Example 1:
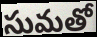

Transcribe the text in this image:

సుమతో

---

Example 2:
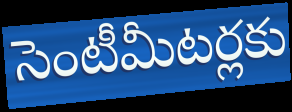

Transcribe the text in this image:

సెంటీమీటర్లకు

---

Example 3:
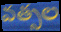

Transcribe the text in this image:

వత్సల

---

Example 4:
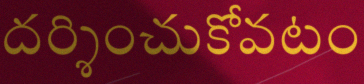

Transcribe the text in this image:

దర్శించుకోవటం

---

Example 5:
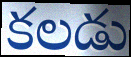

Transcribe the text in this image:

కలడు